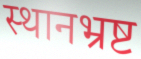
स्थानभ्रष्ट